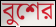
বুশের